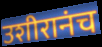
उशीरानंच